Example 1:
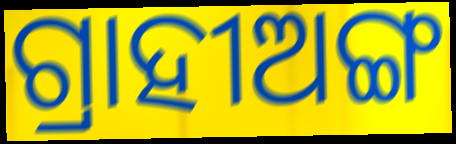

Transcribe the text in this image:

ଗ୍ରାହୀଅଙ୍ଗ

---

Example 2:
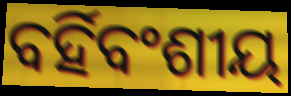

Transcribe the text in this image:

ବର୍ହିବଂଶୀୟ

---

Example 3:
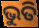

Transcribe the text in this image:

ଭୁତି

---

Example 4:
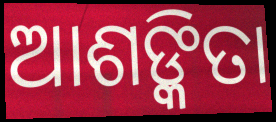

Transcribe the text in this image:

ଆଶଙ୍କିତା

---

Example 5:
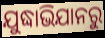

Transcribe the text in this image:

ଯୁଦ୍ଧାଭିଯାନରୁ